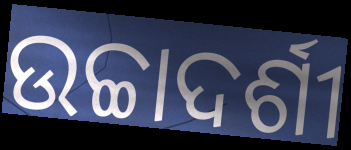
ଉଚ୍ଚାଦର୍ଶୀ